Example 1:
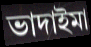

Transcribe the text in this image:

ভাদাইমা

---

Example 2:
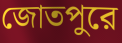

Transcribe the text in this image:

জোতপুরে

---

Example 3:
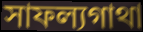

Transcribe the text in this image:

সাফল্যগাথা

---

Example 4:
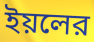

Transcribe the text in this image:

ইয়লের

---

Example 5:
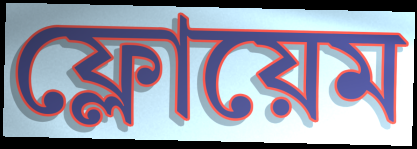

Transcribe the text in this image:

ফ্লোয়েম